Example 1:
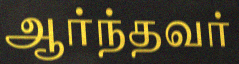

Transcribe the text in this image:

ஆர்ந்தவர்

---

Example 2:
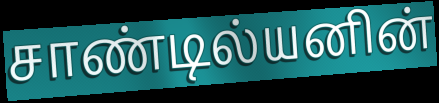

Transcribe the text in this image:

சாண்டில்யனின்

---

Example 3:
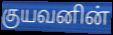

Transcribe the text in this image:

குயவனின்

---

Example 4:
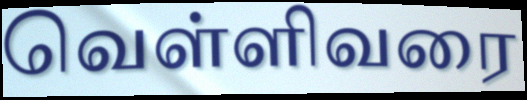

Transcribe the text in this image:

வெள்ளிவரை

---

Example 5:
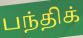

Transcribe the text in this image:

பந்திக்